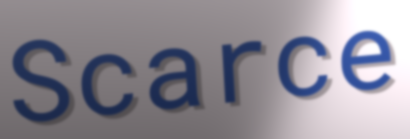
Scarce